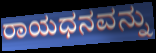
ರಾಯಧನವನ್ನು